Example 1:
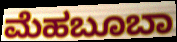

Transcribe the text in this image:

ಮೆಹಬೂಬಾ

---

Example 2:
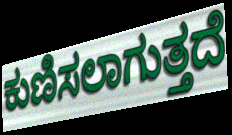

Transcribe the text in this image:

ಕುಣಿಸಲಾಗುತ್ತದೆ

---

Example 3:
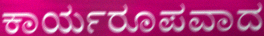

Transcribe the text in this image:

ಕಾರ್ಯರೂಪವಾದ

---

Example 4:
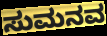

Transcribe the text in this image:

ಸುಮನವ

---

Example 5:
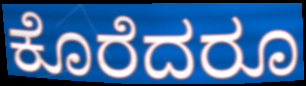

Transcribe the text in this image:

ಕೊರೆದರೂ